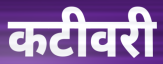
कटीवरी